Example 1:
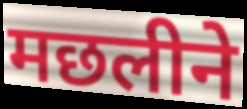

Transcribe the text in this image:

मछलीने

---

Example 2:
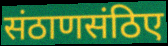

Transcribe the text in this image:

संठाणसंठिए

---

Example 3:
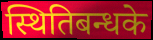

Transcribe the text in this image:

स्थितिबन्धके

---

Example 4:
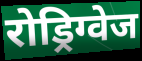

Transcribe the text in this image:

रोड्रिग्वेज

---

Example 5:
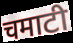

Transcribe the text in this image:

चमाटी